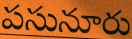
పసునూరు